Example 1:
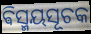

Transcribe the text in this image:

ଵିସ୍ମୟସୂଚକ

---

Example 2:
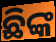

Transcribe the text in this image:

ଛିଙ୍କ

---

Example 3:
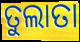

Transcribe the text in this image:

ତୁଲାତା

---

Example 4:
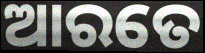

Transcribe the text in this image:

ଆରତେ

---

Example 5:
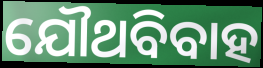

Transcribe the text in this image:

ଯୌଥବିବାହ